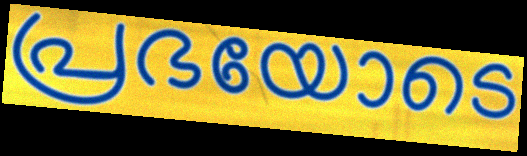
പ്രഭയോടെ